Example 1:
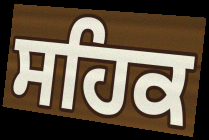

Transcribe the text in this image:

ਸਹਿਕ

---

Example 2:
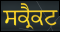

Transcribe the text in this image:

ਸਕ੍ਰੈਕਟ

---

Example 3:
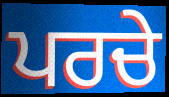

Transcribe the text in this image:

ਪਰਚੇ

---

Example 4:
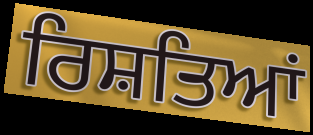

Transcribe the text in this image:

ਰਿਸ਼ਤਿਆਂ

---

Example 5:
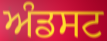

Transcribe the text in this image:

ਅੰਡਸਟ